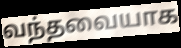
வந்தவையாக